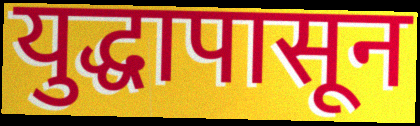
युद्धापासून